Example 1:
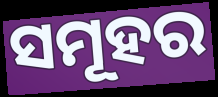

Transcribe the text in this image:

ସମୂହର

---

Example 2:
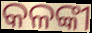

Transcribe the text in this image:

କଳଙ୍କୀ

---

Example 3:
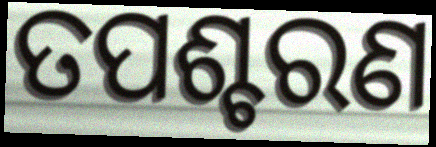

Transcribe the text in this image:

ତପଶ୍ଚରଣ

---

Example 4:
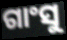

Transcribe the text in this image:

ଗାଂସୁ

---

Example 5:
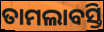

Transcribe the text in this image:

ତାମଲାବସ୍ତି